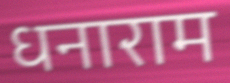
धनाराम